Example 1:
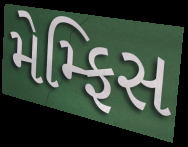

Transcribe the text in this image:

મેમ્ફિસ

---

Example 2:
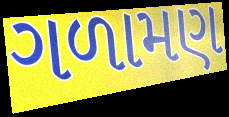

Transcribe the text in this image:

ગળામણ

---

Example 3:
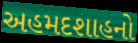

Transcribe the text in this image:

અહમદશાહનો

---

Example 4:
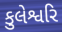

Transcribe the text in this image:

કુલેશ્વરિ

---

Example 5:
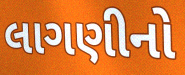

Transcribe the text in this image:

લાગણીનો